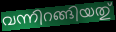
വന്നിറങ്ങിയതു്